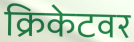
क्रिकेटवर